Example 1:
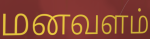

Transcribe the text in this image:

மனவளம்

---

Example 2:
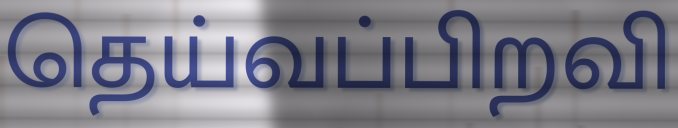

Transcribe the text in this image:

தெய்வப்பிறவி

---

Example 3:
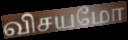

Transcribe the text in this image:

விசயமோ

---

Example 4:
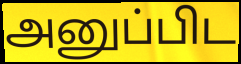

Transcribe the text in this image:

அனுப்பிட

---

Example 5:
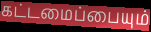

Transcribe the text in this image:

கட்டமைப்பையும்